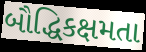
બૌદ્ધિકક્ષમતા